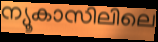
ന്യൂകാസിലിലെ